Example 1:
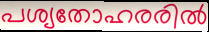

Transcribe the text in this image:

പശ്യതോഹരരിൽ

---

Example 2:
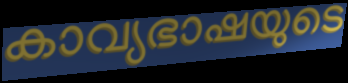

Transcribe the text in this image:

കാവ്യഭാഷയുടെ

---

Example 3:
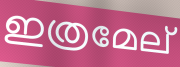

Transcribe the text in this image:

ഇത്രമേല്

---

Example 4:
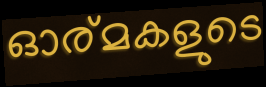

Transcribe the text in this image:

ഓര്മകളുടെ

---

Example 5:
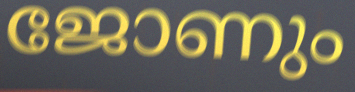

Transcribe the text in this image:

ജോണും